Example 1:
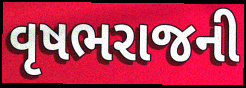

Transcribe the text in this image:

વૃષભરાજની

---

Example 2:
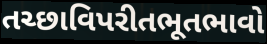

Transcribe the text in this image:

તચ્છાવિપરીતભૂતભાવો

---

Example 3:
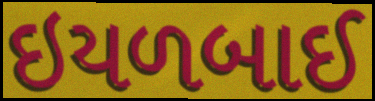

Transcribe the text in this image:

ઇયળબાઈ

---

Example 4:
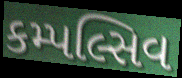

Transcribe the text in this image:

કમ્પલ્સિવ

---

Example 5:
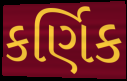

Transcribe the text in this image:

કર્ણિક